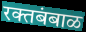
रक्‍तबंबाळ